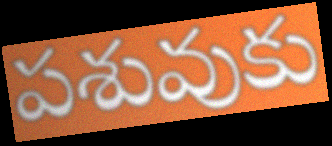
పశువుకు